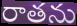
రాతను